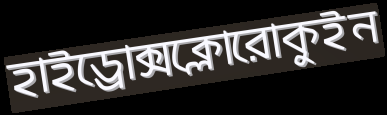
হাইড্রোক্সক্লোরোকুইন